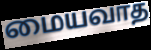
மையவாத